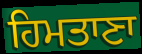
ਹਿਮਤਾਣਾ